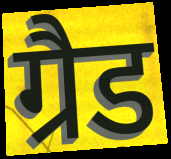
ग्रैड